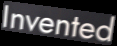
Invented